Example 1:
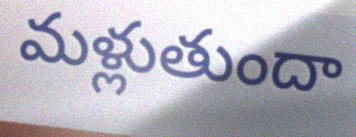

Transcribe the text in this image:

మళ్లుతుందా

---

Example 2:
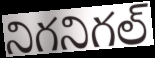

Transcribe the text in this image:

నిగనిగల్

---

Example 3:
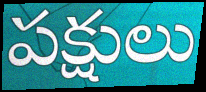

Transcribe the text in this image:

పక్షులు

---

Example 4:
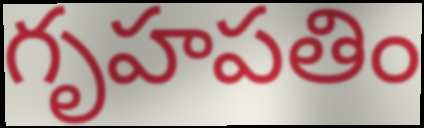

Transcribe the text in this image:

గృహపతిం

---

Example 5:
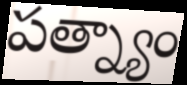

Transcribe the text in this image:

పత్న్యాం